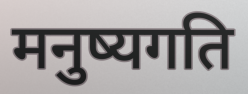
मनुष्यगति